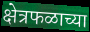
क्षेत्रफळाच्या